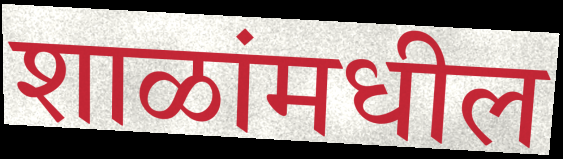
शाळांमधील